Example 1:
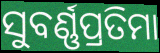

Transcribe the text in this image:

ସୁବର୍ଣ୍ଣପ୍ରତିମା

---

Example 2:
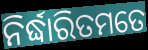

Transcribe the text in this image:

ନିର୍ଦ୍ଧାରିତମତେ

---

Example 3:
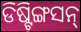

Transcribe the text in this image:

ଡିଷ୍ଟିଙ୍ଗସନ୍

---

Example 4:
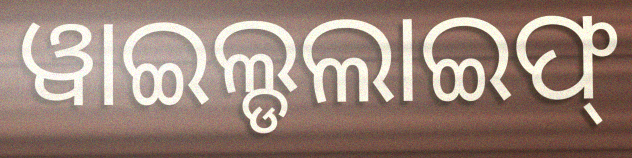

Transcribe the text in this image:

ୱାଇଲ୍ଡଲାଇଫ୍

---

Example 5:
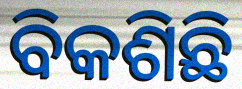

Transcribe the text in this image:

ବିକଶିଛି